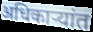
अधिकाऱ्यांत